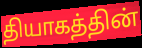
தியாகத்தின்